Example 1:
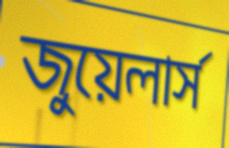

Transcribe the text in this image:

জুয়েলার্স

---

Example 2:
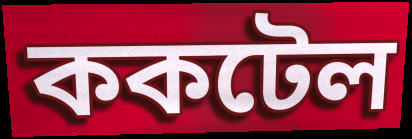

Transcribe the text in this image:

ককটেল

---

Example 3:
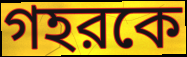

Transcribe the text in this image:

গহরকে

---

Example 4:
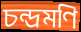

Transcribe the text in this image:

চন্দ্রমণি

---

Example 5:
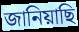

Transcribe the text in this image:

জানিয়াছি